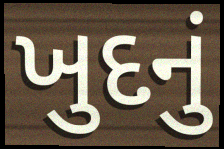
ખુદનું